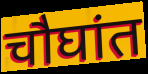
चौघांत